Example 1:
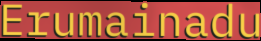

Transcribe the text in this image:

Erumainadu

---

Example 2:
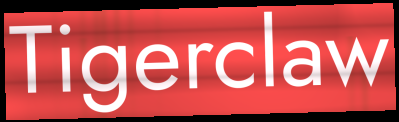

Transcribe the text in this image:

Tigerclaw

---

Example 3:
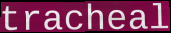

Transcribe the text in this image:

tracheal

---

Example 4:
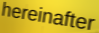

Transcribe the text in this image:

hereinafter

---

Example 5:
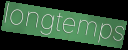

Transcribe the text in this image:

longtemps